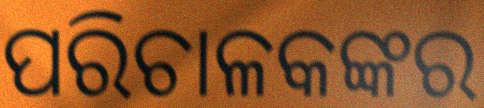
ପରିଚାଳକଙ୍କର